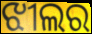
ଝୀଲର